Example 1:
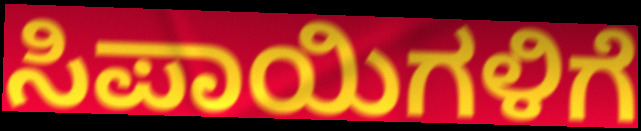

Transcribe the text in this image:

ಸಿಪಾಯಿಗಳಿಗೆ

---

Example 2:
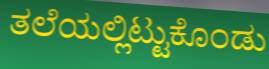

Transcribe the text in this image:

ತಲೆಯಲ್ಲಿಟ್ಟುಕೊಂಡು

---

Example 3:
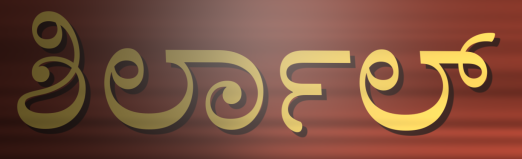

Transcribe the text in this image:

ಶಿರ್ಲಾಲ್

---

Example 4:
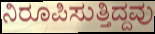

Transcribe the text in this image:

ನಿರೂಪಿಸುತ್ತಿದ್ದವು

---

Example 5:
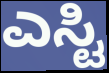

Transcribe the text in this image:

ಎಸ್ಟಿ